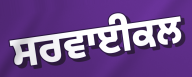
ਸਰਵਾਈਕਲ